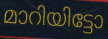
മാറിയിട്ടോ